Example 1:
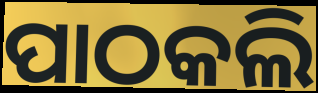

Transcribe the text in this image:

ପାଠକଲି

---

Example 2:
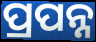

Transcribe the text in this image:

ପ୍ରପନ୍ନ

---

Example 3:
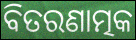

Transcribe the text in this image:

ବିତରଣାତ୍ମକ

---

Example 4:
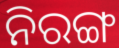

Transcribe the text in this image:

ନିରଙ୍ଗ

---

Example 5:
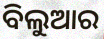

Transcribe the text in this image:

ବିଲୁଆର